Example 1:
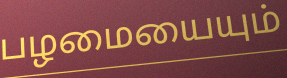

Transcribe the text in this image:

பழமையையும்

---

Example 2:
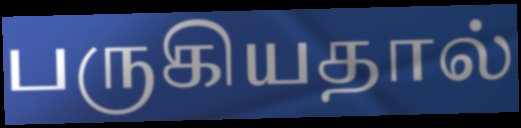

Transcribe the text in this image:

பருகியதால்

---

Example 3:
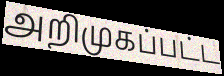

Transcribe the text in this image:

அறிமுகப்பட்ட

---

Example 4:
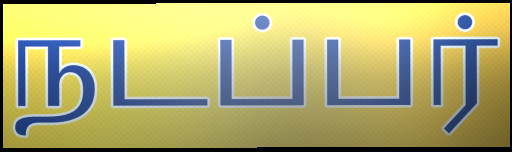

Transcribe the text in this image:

நடப்பர்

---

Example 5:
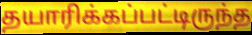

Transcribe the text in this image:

தயாரிக்கப்பட்டிருந்த